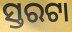
ସ୍ତରଟା